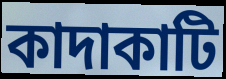
কাদাকাটি